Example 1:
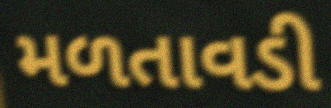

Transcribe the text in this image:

મળતાવડી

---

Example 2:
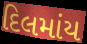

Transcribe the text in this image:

દિલમાંય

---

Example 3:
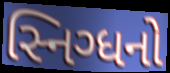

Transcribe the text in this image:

સ્નિગ્ધનો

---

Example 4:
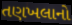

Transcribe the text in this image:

તણખલાનો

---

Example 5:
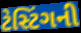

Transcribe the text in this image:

ટેસ્ટિંગની